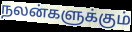
நலன்களுக்கும்